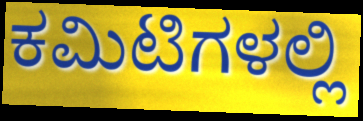
ಕಮಿಟಿಗಳಲ್ಲಿ